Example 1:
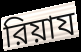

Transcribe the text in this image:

রিয়ায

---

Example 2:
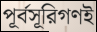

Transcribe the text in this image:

পূর্বসূরিগণই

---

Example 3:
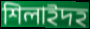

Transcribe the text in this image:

শিলাইদহ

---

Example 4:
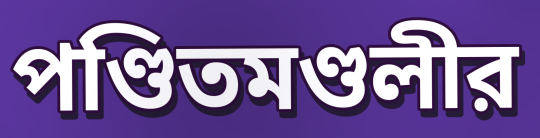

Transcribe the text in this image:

পণ্ডিতমণ্ডলীর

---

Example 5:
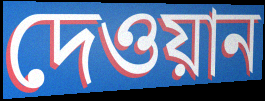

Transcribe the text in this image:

দেওয়ান